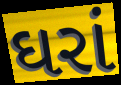
ઘરાં